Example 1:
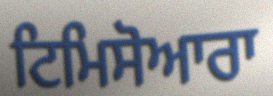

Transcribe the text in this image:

ਟਿਮਿਸੋਆਰਾ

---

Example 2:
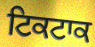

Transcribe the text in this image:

ਟਿਕਟਾਕ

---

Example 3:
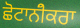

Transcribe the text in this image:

ਛੋਟਾਨੀੱਕਰਾ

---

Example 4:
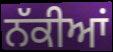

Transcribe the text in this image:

ਨੱਕੀਆਂ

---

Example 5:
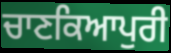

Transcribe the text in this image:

ਚਾਣਕਿਆਪੁਰੀ